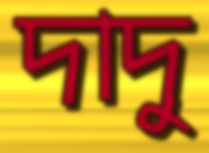
দাদু